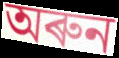
অৰুন